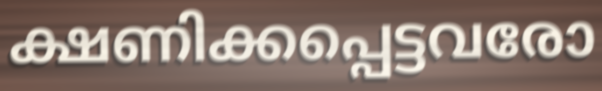
ക്ഷണിക്കപ്പെട്ടവരോ